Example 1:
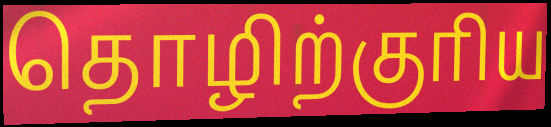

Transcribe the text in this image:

தொழிற்குரிய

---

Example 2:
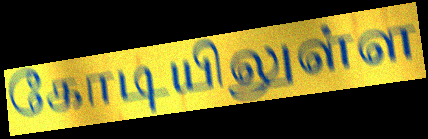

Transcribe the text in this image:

கோடியிலுள்ள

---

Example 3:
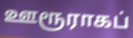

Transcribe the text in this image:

ஊரூராகப்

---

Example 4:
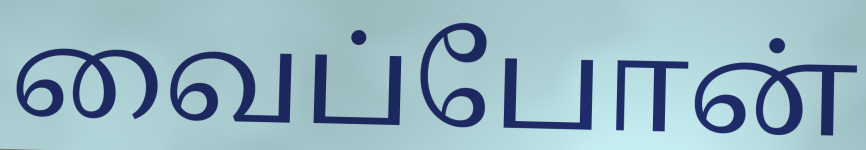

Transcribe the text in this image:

வைப்போன்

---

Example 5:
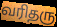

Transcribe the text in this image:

வரிதரு